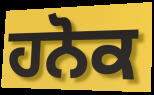
ਹਨੋਕ